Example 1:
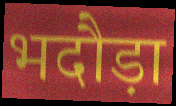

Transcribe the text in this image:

भदौड़ा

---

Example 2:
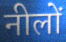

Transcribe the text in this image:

नीलों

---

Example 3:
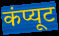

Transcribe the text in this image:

कंप्यूट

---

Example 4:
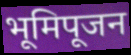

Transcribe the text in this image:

भूमिपूजन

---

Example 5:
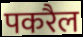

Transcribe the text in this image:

पकरैल